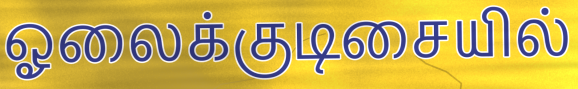
ஓலைக்குடிசையில்